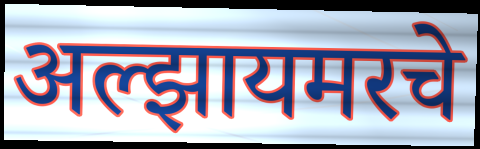
अल्झायमरचे